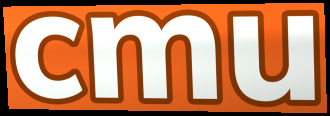
cmu